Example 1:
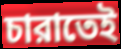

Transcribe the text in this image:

চারাতেই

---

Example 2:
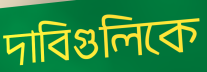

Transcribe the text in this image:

দাবিগুলিকে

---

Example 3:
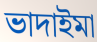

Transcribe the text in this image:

ভাদাইমা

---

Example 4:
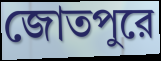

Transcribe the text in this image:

জোতপুরে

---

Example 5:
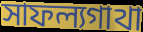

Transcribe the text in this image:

সাফল্যগাথা